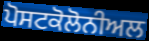
ਪੋਸਟਕੋਲੋਨੀਅਲ